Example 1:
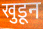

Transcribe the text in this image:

खुडून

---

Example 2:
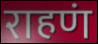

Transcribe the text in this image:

राहणं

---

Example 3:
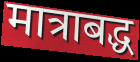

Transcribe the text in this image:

मात्राबद्ध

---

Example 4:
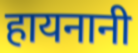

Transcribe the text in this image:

हायनानी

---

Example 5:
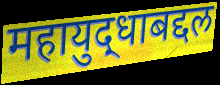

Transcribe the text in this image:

महायुद्धाबद्दल